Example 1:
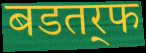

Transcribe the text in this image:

बडतर्फ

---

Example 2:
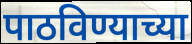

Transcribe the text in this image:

पाठविण्याच्या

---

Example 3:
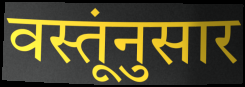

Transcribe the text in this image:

वस्तूंनुसार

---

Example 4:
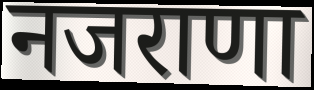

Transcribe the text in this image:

नजराणा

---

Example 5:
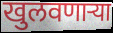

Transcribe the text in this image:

खुलवणाऱ्या